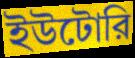
ইউটোরি